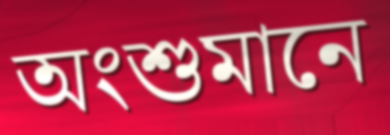
অংশুমানে